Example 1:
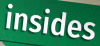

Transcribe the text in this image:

insides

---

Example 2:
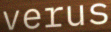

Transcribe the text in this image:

verus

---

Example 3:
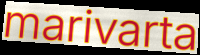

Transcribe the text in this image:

marivarta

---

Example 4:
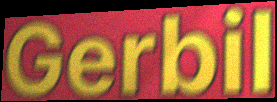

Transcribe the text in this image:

Gerbil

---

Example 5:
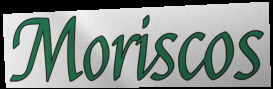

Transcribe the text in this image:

Moriscos